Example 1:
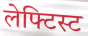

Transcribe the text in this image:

लेफ्टिस्ट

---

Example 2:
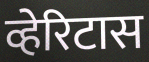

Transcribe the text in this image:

व्हेरिटास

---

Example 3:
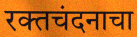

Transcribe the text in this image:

रक्तचंदनाचा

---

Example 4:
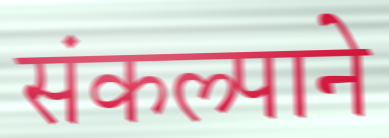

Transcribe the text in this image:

संकल्पाने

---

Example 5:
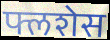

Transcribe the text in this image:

फ्लशेस